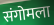
संगोमला